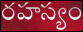
రహస్యం